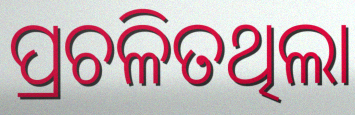
ପ୍ରଚଳିତଥିଲା